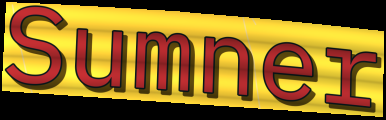
Sumner